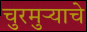
चुरमुऱ्याचे